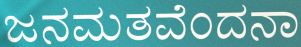
ಜನಮತವೆಂದನಾ